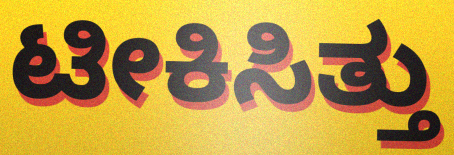
ಟೀಕಿಸಿತ್ತು